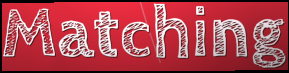
Matching